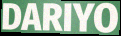
DARIYO